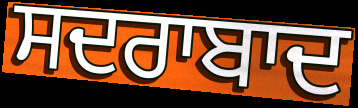
ਸਦਰਾਬਾਦ